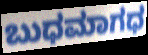
ಬುಧಮಾಗಧ